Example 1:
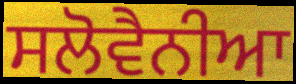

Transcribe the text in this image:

ਸਲੋਵੈਨੀਆ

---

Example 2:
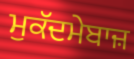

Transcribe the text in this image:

ਮੁਕੱਦਮੇਬਾਜ਼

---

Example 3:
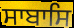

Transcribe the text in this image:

ਸਾਬਾਸਿ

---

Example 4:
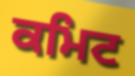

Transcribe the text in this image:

ਕਮਿਟ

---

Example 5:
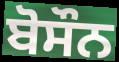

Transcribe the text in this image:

ਬੋਸੌਨ